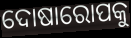
ଦୋଷାରୋପକୁ